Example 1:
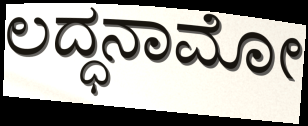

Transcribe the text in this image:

ಲದ್ಧನಾಮೋ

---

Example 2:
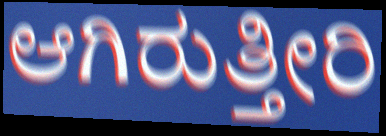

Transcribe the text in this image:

ಆಗಿರುತ್ತೀರಿ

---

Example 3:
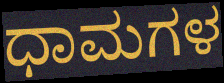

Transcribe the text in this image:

ಧಾಮಗಳ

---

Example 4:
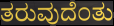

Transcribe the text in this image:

ತರುವುದೆಂತು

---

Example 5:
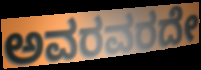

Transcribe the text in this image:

ಅವರವರದೇ